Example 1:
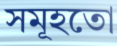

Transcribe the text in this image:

সমূহতো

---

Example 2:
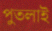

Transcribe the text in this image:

পুতলাই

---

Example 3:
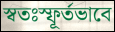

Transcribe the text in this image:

স্বতঃস্ফূৰ্তভাবে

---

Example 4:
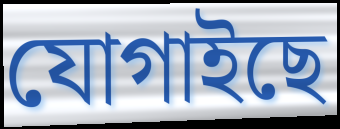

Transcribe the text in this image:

যোগাইছে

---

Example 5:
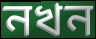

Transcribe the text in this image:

নখন